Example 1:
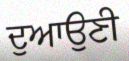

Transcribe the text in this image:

ਦੁਆਉਣੀ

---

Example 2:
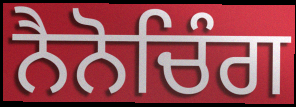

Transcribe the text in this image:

ਨੈਨੋਚਿੰਗ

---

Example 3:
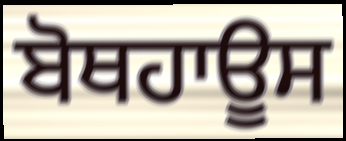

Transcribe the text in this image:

ਬੋਥਹਾਊਸ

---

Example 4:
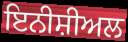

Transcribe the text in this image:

ਇਨੀਸ਼ੀਅਲ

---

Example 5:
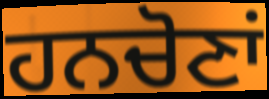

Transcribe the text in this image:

ਹਨਚੋਣਾਂ